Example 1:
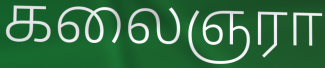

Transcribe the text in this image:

கலைஞரா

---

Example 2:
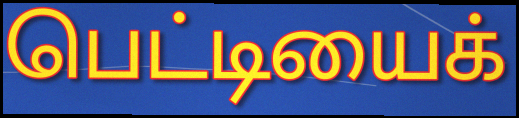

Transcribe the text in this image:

பெட்டியைக்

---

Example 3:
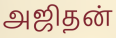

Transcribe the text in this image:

அஜிதன்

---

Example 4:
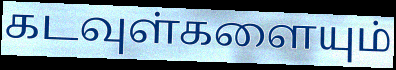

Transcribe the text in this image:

கடவுள்களையும்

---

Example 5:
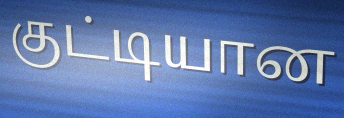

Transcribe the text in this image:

குட்டியான